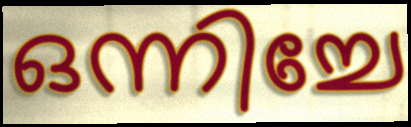
ഒന്നിച്ചേ